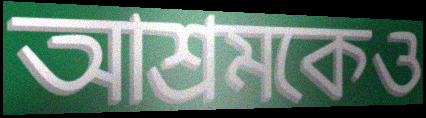
আশ্রমকেও